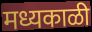
मध्यकाळी